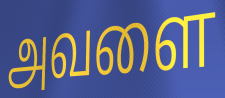
அவளை